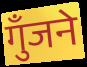
गुँजने